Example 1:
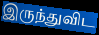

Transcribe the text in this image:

இருந்துவிட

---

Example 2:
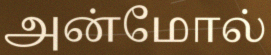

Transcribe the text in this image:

அன்மோல்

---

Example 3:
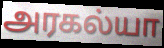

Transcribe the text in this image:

அரகல்யா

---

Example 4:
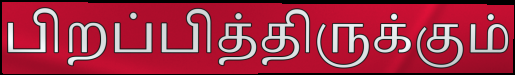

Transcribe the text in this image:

பிறப்பித்திருக்கும்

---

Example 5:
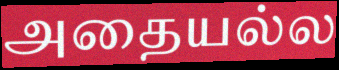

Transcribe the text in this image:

அதையல்ல